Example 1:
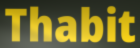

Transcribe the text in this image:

Thabit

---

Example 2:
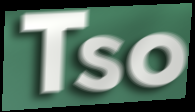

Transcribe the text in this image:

Tso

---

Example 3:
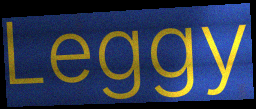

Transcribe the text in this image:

Leggy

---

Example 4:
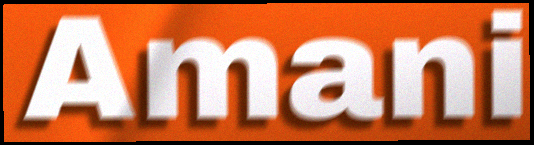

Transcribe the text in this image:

Amani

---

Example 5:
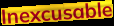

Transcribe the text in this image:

Inexcusable